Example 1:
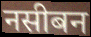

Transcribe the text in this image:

नसीबन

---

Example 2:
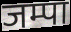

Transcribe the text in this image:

जम्पा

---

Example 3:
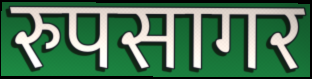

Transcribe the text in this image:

रुपसागर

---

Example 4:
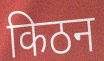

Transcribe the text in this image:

किठन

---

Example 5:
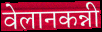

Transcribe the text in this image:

वेलानकन्नी